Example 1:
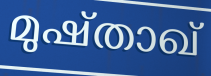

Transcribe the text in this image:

മുഷ്താഖ്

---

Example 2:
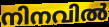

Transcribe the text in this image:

നിനവിൽ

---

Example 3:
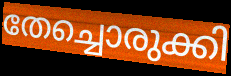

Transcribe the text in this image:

തേച്ചൊരുക്കി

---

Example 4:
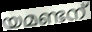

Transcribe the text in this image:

യമണ്ടന്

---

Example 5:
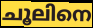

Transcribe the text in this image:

ചൂലിനെ